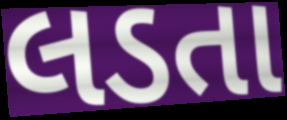
લડતા